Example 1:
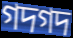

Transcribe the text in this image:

গদগদ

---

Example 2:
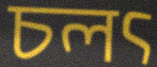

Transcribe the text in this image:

চলৎ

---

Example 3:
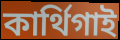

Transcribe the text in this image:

কার্থিগাই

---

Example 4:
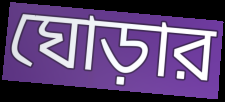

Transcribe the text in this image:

ঘোড়ার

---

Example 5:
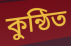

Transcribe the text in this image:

কুন্ঠিত